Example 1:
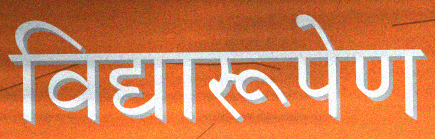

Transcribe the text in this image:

विद्यारूपेण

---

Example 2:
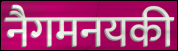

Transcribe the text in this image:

नैगमनयकी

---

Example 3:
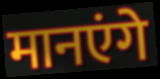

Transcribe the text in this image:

मानएंगे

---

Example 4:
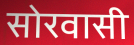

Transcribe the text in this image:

सोरवासी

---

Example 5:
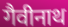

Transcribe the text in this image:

गैवीनाथ